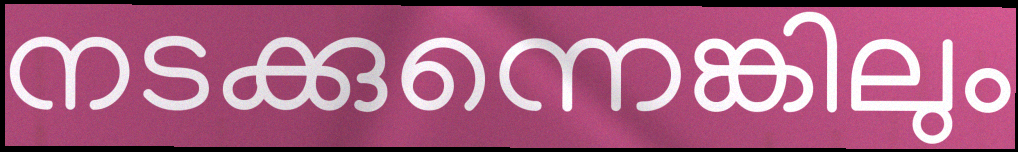
നടക്കുന്നെങ്കിലും